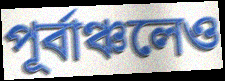
পূর্বাঞ্চলেও